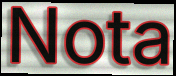
Nota